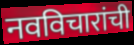
नवविचारांची